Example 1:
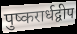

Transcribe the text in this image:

पुष्करार्धद्वीप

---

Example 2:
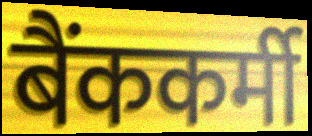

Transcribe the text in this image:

बैंककर्मी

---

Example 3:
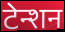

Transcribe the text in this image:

टेन्शन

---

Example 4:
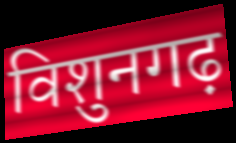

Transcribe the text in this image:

विशुनगढ़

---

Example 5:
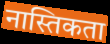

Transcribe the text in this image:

नास्तिकता